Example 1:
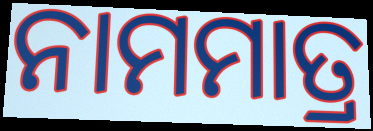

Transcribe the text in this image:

ନାମମାତ୍ର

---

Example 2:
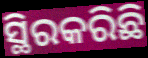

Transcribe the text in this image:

ସ୍ଥିରକରିଛି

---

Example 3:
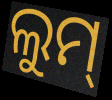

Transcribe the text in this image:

ଲୁମ୍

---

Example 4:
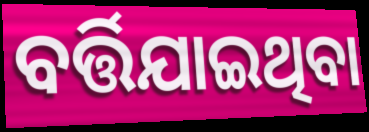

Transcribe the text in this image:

ବର୍ତ୍ତିଯାଇଥିବା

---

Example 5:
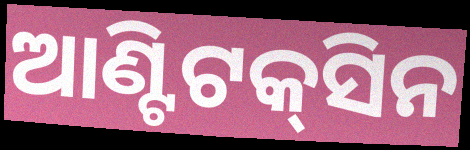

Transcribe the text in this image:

ଆଣ୍ଟିଟକ୍‌ସିନ